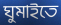
ঘুমাইতে